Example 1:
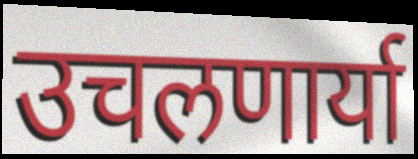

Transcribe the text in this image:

उचलणार्या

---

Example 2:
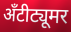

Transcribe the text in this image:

अँटीट्यूमर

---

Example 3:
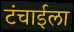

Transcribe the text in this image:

टंचाईला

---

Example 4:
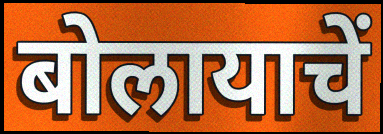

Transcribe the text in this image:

बोलायाचें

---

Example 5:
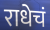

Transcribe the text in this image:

राधेचं